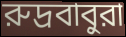
রুদ্রবাবুরা